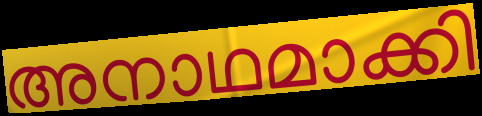
അനാഥമാക്കി